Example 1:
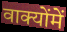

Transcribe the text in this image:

वाक्योंमें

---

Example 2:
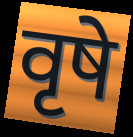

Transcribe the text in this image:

वृषे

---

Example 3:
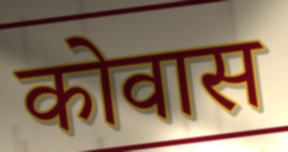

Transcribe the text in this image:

कोवास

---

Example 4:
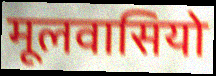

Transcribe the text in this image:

मूलवासियो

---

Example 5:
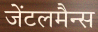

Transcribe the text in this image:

जेंटलमैन्स